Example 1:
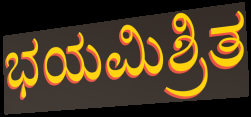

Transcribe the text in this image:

ಭಯಮಿಶ್ರಿತ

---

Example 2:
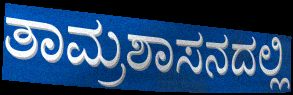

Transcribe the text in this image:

ತಾಮ್ರಶಾಸನದಲ್ಲಿ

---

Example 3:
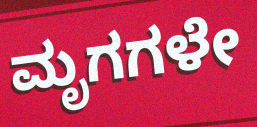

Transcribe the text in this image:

ಮೃಗಗಳೇ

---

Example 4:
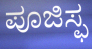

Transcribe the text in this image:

ಪೂಜಿಸ್ಫ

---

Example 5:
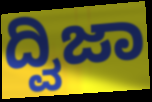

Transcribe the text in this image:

ದ್ವಿಜಾ